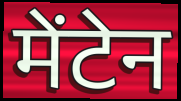
मेंटेन